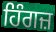
ਹਿੰਗਜ਼